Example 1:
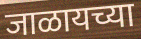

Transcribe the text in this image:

जाळायच्या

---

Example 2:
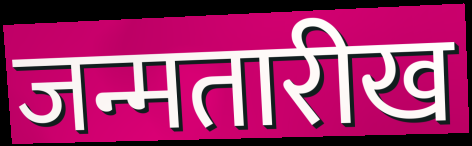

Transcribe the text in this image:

जन्मतारीख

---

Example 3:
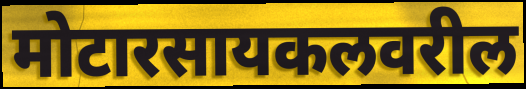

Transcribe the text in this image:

मोटारसायकलवरील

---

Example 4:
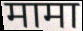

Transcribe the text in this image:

मामा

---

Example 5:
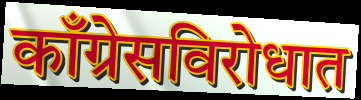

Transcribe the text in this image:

काँग्रेसविरोधात